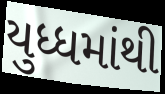
યુધ્ધમાંથી